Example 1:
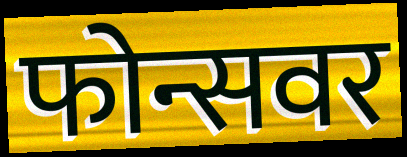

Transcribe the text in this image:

फोन्सवर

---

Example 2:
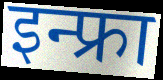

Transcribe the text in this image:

इन्फ्रा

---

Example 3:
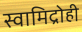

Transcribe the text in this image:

स्वामिद्रोही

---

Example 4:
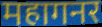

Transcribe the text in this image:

महागनर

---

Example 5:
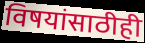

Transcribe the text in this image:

विषयांसाठीही